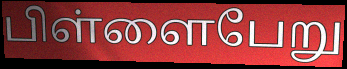
பிள்ளைபேறு